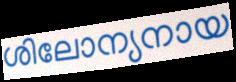
ശിലോന്യനായ